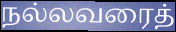
நல்லவரைத்